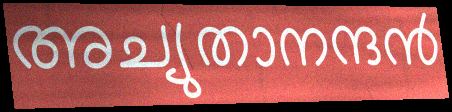
അച്യുതാനന്ദൻ